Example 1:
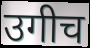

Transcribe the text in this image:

उगीच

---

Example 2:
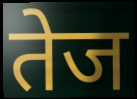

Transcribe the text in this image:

तेज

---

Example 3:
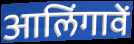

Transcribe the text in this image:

आलिंगावें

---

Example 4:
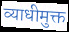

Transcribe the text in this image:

व्याधीमुक्त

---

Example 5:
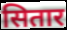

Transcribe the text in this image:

सितार